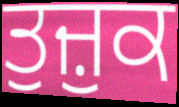
ਤੁਜ਼ੁਕ